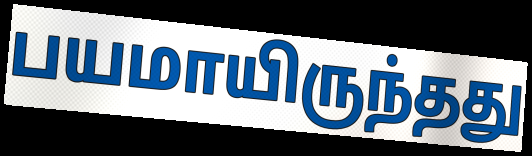
பயமாயிருந்தது